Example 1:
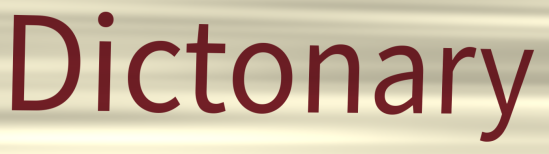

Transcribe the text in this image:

Dictonary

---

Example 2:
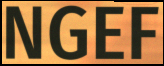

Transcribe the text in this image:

NGEF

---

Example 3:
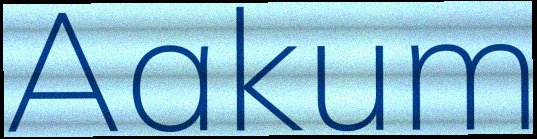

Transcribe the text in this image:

Aakum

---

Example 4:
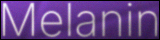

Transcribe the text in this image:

Melanin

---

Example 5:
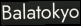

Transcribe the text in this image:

Balatokyo